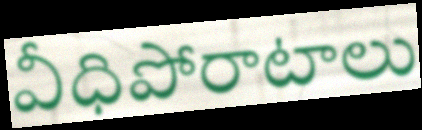
వీధిపోరాటాలు